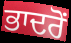
ਭਾਦਰੋਂ